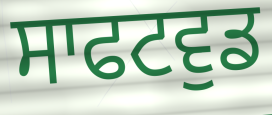
ਸਾਫਟਵੁਡ